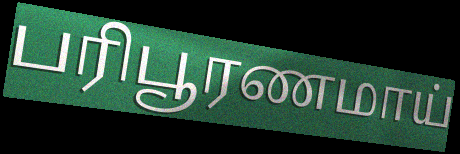
பரிபூரணமாய்